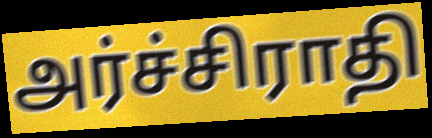
அர்ச்சிராதி